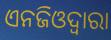
ଏନଜିଓଦ୍ୱାରା